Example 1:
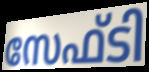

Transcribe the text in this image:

സേഫ്ടി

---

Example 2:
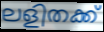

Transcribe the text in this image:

ലളിതക്ക്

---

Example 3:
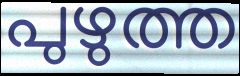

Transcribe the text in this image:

പുഴുത്ത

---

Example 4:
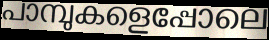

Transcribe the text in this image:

പാമ്പുകളെപ്പോലെ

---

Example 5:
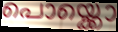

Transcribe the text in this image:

പൊയ്ക്കൊ